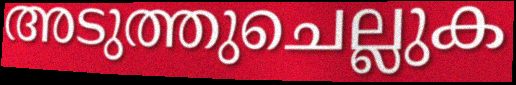
അടുത്തുചെല്ലുക